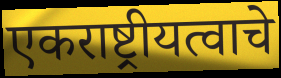
एकराष्ट्रीयत्वाचे